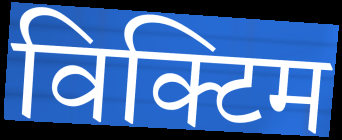
विक्टिम